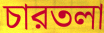
চারতলা